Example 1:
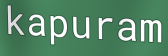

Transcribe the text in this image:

kapuram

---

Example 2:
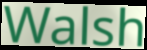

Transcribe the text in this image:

Walsh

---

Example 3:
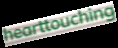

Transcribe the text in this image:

hearttouching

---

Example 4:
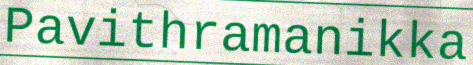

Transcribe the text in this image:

Pavithramanikka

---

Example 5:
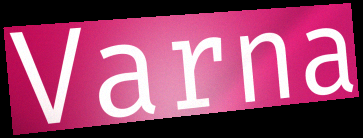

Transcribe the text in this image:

Varna